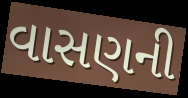
વાસણની